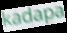
kadapa